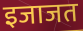
इजाजत